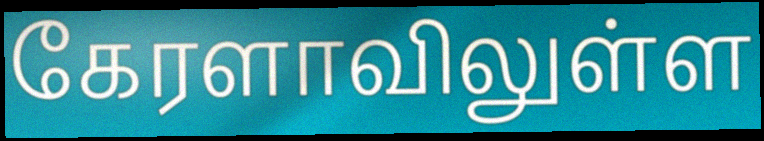
கேரளாவிலுள்ள